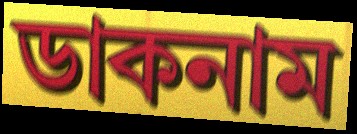
ডাকনাম